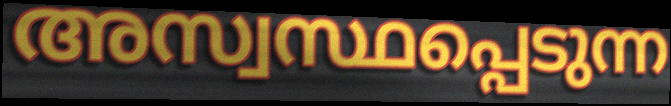
അസ്വസ്ഥപ്പെടുന്ന